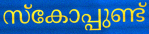
സ്കോപ്പുണ്ട്